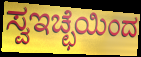
ಸ್ವಇಚ್ಛೆಯಿಂದ